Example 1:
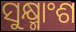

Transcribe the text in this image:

ସୁକ୍ଷ୍ମାଂଶ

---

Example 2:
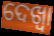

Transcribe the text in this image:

ଦେଖ୍ବା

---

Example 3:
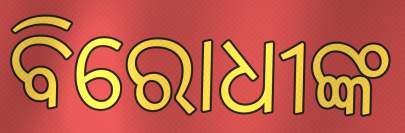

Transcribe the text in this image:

ବିରୋଧୀଙ୍କ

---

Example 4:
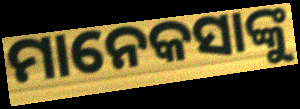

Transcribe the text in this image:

ମାନେକସାଙ୍କୁ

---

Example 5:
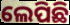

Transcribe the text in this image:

ଲେପିଛି